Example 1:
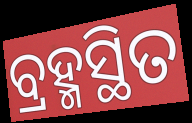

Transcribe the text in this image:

ବ୍ରହ୍ମସ୍ଥିତ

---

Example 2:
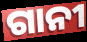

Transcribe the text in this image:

ଗାନୀ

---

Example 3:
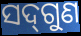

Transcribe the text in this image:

ସଦ୍‌ଗୁଣ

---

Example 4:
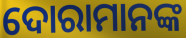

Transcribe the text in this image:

ଦୋରାମାନଙ୍କ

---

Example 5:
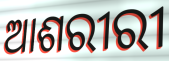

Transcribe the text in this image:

ଆଶରୀରୀ